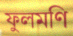
ফুলমণি